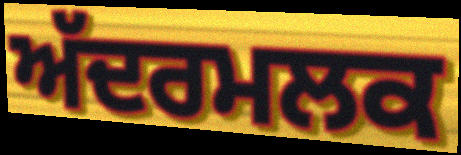
ਅੱਦਰਮਲਕ